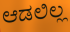
ಆಡಲಿಲ್ಲ